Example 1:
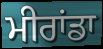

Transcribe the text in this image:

ਮੀਰਾਂਡਾ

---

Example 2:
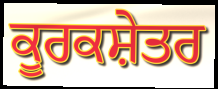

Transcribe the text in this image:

ਕੂਰਕਸ਼ੇਤਰ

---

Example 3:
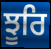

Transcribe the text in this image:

ਝੂਰਿ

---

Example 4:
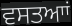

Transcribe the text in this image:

ਵਸਤਆਾਂ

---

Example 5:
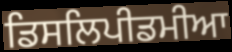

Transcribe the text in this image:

ਡਿਸਲਿਪੀਡਮੀਆ